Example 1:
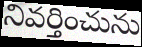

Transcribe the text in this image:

నివర్తించును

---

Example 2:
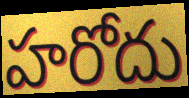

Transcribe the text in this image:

హరోదు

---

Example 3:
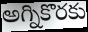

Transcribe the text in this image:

అగ్నికొరకు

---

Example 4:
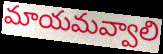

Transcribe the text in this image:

మాయమవ్వాలి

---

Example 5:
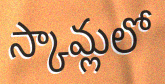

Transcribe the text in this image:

స్కామ్లలో